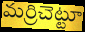
మర్రిచెట్టూ